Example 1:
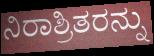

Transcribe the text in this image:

ನಿರಾಶ್ರಿತರನ್ನು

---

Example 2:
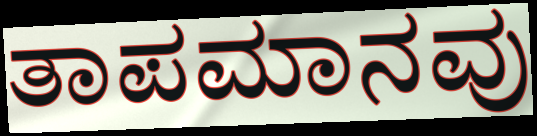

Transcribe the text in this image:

ತಾಪಮಾನವು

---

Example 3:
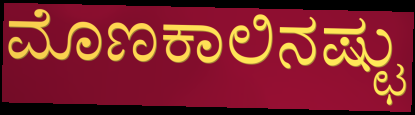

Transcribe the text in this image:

ಮೊಣಕಾಲಿನಷ್ಟು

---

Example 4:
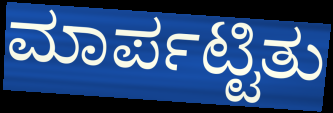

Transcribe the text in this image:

ಮಾರ್ಪಟ್ಟಿತು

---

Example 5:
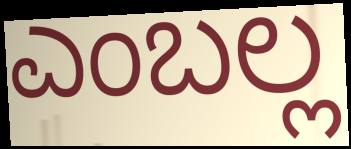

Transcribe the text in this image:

ಎಂಬಲ್ಲ